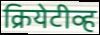
क्रियेटीव्ह